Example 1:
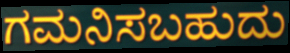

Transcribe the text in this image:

ಗಮನಿಸಬಹುದು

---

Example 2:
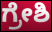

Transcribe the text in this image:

ಗ್ರೇಶಿ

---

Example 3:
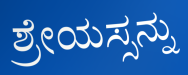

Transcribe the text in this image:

ಶ್ರೇಯಸ್ಸನ್ನು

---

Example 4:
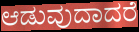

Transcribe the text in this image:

ಆಡುವುದಾದರೆ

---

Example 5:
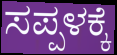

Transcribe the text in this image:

ಸಪ್ಪಳಕ್ಕೆ